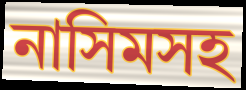
নাসিমসহ